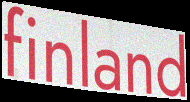
finland